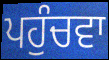
ਪਹੁੰਚਵਾ